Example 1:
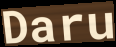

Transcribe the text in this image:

Daru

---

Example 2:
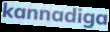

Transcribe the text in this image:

kannadiga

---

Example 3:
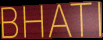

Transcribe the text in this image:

BHATI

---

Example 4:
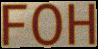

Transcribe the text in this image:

FOH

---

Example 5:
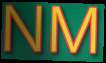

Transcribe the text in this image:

NM